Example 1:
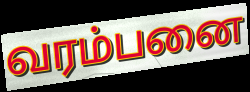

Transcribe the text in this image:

வரம்பனை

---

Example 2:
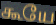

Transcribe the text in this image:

கூயே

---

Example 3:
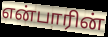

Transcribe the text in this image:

என்பாரின்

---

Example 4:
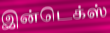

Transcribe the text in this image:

இன்டெக்ஸ்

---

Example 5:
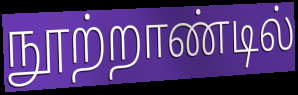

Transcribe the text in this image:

நூற்றாண்டில்